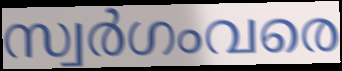
സ്വർഗംവരെ